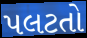
પલટતો